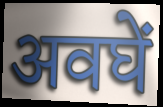
अवघें